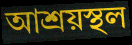
আশ্রয়স্থল